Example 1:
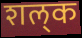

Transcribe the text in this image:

शल्क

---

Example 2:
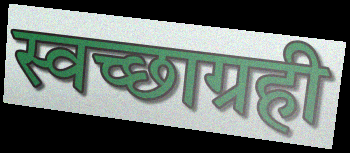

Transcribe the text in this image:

स्वच्छाग्रही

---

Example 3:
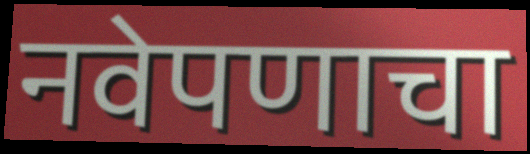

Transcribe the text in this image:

नवेपणाचा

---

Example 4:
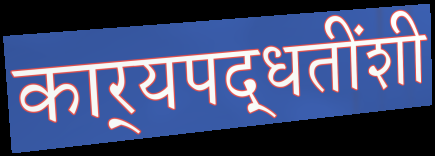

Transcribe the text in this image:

कार्यपद्धतींशी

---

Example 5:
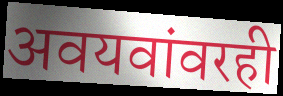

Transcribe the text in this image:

अवयवांवरही